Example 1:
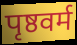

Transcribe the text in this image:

पृष्ठवर्म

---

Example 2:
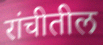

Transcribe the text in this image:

रांचीतील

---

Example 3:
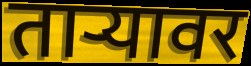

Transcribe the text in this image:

ताऱ्यावर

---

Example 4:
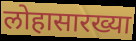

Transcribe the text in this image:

लोहासारख्या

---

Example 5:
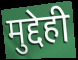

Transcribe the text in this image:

मुद्देही